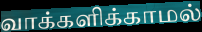
வாக்களிக்காமல்